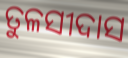
ତୁଳସୀଦାସ